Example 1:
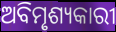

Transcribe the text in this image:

ଅବିମୃଶ୍ୟକାରୀ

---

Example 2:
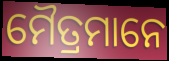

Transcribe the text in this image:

ମୈତ୍ରମାନେ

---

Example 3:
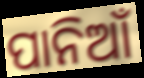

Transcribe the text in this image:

ପାନିଆଁ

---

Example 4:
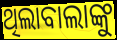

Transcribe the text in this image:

ଥିଲାବାଲାଙ୍କୁ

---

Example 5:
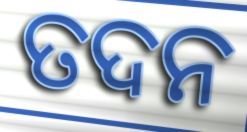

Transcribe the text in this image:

ତଦନ